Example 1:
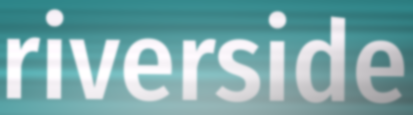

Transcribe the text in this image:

riverside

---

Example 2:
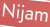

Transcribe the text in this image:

Nijam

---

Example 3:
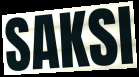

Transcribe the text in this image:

SAKSI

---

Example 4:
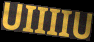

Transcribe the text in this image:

UIIIIU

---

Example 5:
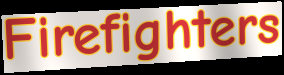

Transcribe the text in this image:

Firefighters